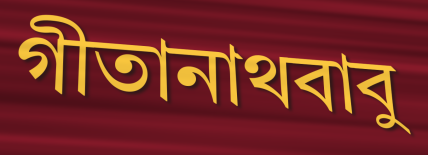
গীতানাথবাবু